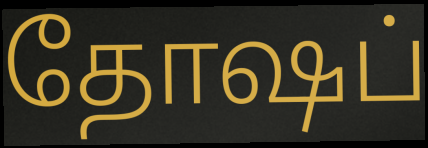
தோஷப்